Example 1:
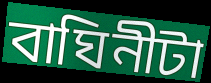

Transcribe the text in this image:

বাঘিনীটা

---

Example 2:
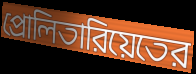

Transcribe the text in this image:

প্রোলিতারিয়েতের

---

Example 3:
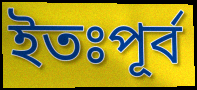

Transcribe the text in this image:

ইতঃপূর্ব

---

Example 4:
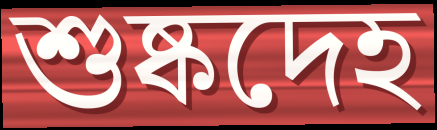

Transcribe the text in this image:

শুষ্কদেহ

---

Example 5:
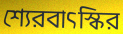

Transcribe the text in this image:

শ্যেরবাৎস্কির